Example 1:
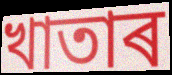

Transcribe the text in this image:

খাতাৰ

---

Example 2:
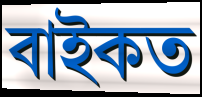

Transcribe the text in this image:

বাইকত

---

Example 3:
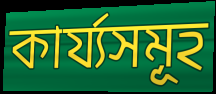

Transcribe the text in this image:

কাৰ্য্যসমূহ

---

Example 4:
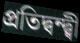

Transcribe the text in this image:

প্ৰতিদ্বন্দ্ব্বী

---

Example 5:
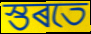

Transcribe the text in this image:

স্তৰতে